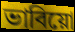
ভাবিয়ো